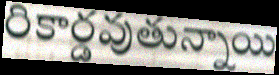
రికార్డవుతున్నాయి